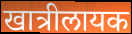
खात्रीलायक